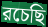
রচেছি